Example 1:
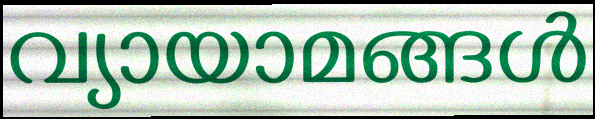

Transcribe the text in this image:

വ്യായാമങ്ങൾ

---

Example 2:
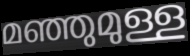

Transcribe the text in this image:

മഞ്ഞുമുള്ള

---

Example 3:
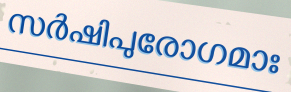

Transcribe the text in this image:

സർഷിപുരോഗമാഃ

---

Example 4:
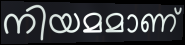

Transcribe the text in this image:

നിയമമാണ്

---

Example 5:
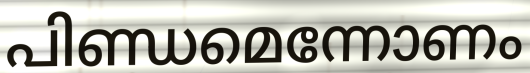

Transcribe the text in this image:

പിണ്ഡമെന്നോണം